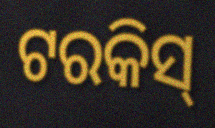
ଟରକିସ୍